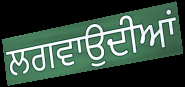
ਲਗਵਾਉਦੀਆਂ